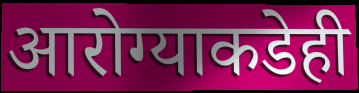
आरोग्याकडेही